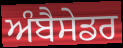
ਅੰਬੈਸੇਡਰ